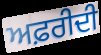
ਅਫ਼ਰੀਦੀ